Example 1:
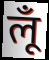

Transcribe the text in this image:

लूँ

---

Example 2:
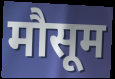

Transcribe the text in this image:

मौसूम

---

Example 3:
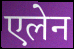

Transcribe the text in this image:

एलेन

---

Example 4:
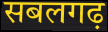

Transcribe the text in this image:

सबलगढ़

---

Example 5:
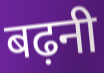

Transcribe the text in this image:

बढ़नी